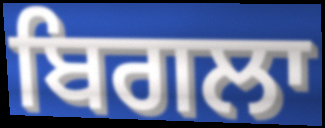
ਬਿਗਲਾ